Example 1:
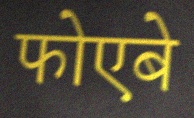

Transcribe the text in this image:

फोएबे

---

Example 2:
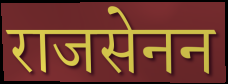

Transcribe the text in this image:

राजसेनन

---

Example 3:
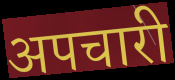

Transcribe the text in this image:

अपचारी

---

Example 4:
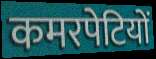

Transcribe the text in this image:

कमरपेटियों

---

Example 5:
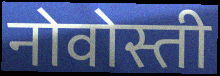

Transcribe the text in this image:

नोवोस्ती